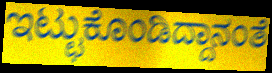
ಇಟ್ಟುಕೊಂಡಿದ್ದಾನಂತೆ